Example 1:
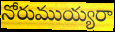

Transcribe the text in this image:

నోరుముయ్యరా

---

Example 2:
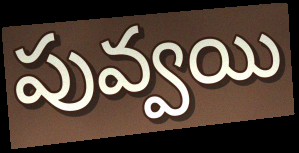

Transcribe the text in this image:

పువ్వయి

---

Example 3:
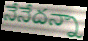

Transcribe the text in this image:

నేనేదన్నా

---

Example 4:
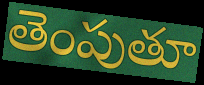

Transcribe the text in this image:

తెంపుతూ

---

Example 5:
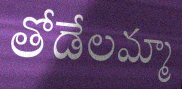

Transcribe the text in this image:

తోడేలమ్మా